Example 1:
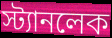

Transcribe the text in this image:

স্ট্যানলেক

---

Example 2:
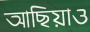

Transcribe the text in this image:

আছিয়াও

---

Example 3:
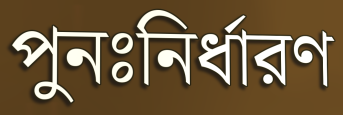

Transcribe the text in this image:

পুনঃনির্ধারণ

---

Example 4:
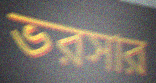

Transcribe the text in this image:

ভরসার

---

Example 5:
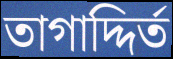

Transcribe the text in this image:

তাগাদ্দির্ত